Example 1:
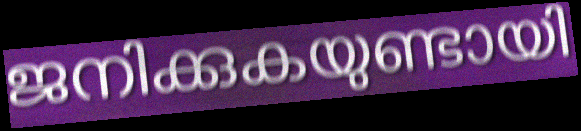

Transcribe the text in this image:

ജനിക്കുകയുണ്ടായി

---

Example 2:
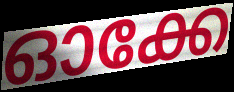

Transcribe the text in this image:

ഓക്കേ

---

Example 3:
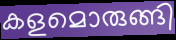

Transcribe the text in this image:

കളമൊരുങ്ങി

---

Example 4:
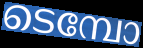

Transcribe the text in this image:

ടെമ്പോ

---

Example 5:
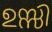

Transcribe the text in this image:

ഉസ്സി